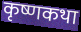
कृष्णकथा